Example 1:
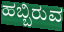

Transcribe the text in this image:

ಹಬ್ಬಿರುವ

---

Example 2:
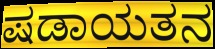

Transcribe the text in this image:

ಷಡಾಯತನ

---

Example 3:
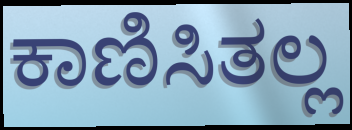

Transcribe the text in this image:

ಕಾಣಿಸಿತಲ್ಲ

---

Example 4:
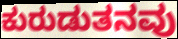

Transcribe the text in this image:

ಕುರುಡುತನವು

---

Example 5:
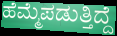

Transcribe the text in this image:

ಹೆಮ್ಮೆಪಡುತ್ತಿದ್ದೆ